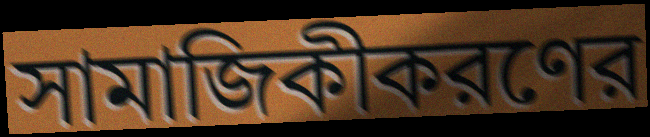
সামাজিকীকরণের